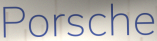
Porsche